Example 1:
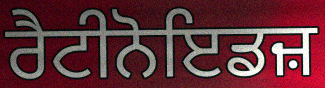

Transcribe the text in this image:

ਰੈਟੀਨੋਇਡਜ਼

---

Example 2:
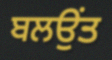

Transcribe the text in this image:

ਬਲਉਂਤ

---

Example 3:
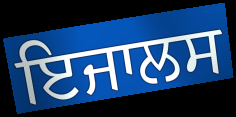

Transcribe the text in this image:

ਇਜਾਲਸ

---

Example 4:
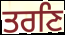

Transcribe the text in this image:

ਤਰਣਿ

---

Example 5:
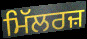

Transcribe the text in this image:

ਮਿੱਲਰਜ਼